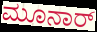
ಮೂನಾರ್